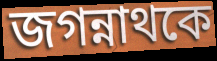
জগন্নাথকে